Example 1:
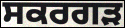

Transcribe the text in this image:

ਸਕਰਗੜ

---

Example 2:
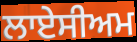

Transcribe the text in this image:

ਲਾਏਸੀਅਮ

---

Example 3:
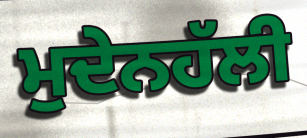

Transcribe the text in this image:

ਮੁਦੇਨਹੱਲੀ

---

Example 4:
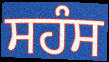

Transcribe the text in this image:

ਸਹੰਸ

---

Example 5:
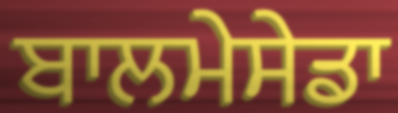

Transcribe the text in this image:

ਬਾਲਮੇਸੇਡਾ